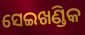
ସେଇଖଣ୍ଡିକ